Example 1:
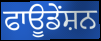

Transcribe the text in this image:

ਫਾਊਡੇਂਸ਼ਨ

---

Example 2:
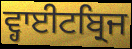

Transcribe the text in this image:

ਵ੍ਹਾਈਟਬ੍ਰਿਜ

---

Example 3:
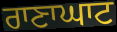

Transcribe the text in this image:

ਰਾਣਾਘਾਟ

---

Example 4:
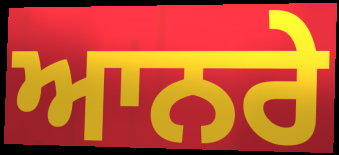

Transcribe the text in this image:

ਆਨਰੇ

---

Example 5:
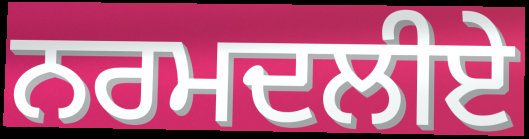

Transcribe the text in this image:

ਨਰਮਦਲੀਏ